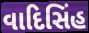
વાદિસિંહ